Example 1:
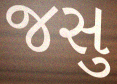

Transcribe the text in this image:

જસુ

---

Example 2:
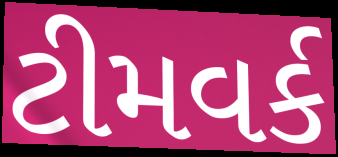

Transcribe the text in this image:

ટીમવર્ક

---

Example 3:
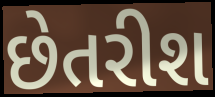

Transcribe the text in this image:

છેતરીશ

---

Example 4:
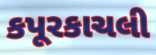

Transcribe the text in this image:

કપૂરકાચલી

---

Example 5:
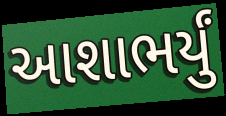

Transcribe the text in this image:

આશાભર્યું